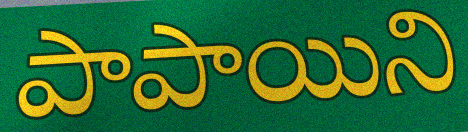
పాపాయిని